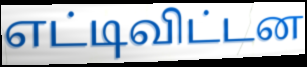
எட்டிவிட்டன